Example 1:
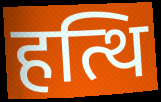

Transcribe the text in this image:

हत्थि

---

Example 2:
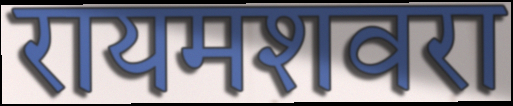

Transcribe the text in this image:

रायमशवरा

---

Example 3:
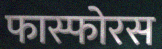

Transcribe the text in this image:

फास्‍फोरस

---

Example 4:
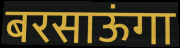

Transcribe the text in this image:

बरसाऊंगा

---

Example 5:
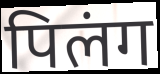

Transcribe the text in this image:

पिलंग